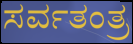
ಸರ್ವತಂತ್ರ